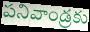
పనివాండ్రకు